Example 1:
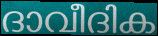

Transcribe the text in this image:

ദാവീദിക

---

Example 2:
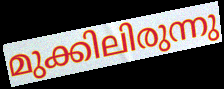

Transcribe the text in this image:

മുക്കിലിരുന്നു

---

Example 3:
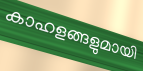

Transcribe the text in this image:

കാഹളങ്ങളുമായി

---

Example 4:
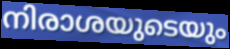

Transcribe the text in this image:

നിരാശയുടെയും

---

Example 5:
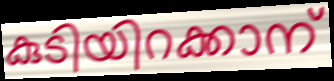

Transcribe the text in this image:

കുടിയിറക്കാന്